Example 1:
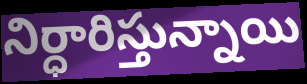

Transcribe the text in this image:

నిర్ధారిస్తున్నాయి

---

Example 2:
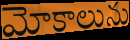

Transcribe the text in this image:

మోకాలును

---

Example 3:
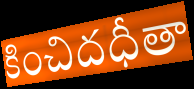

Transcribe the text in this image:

కించిదధీతా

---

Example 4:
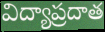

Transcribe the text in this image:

విద్యాప్రదాత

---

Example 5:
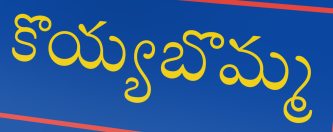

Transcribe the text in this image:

కొయ్యబొమ్మ